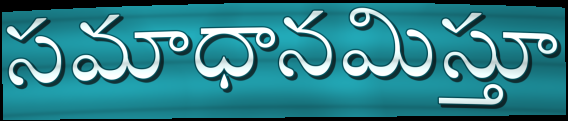
సమాధానమిస్తూ